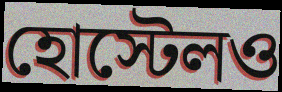
হোস্টেলও